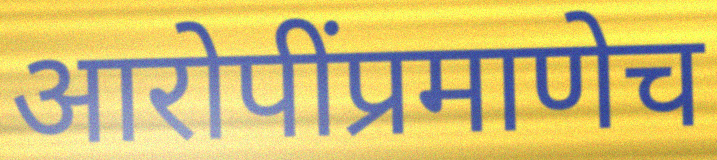
आरोपींप्रमाणेच